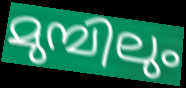
മുമ്പിലും